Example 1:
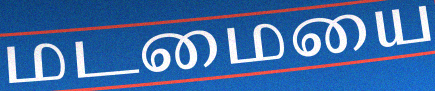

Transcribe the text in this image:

மடமையை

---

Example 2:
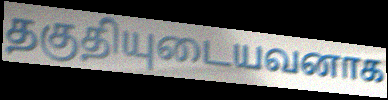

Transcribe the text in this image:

தகுதியுடையவனாக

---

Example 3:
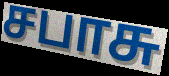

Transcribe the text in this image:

சபாசு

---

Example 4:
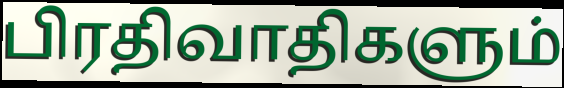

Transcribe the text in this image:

பிரதிவாதிகளும்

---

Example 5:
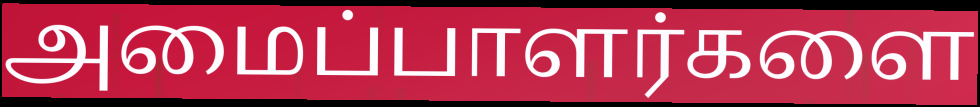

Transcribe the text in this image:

அமைப்பாளர்களை